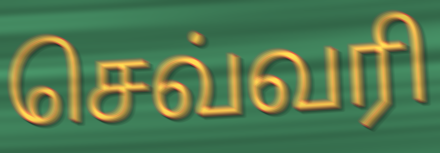
செவ்வரி